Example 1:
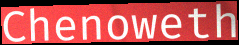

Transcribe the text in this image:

Chenoweth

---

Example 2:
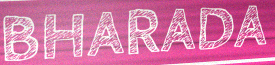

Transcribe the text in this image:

BHARADA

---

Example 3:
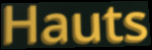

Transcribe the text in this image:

Hauts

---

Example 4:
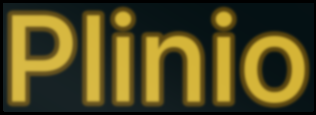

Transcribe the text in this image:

Plinio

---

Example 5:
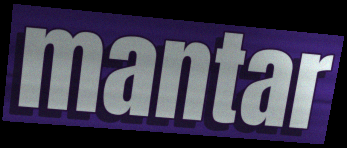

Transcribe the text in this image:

mantar